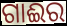
ଗାଈର